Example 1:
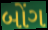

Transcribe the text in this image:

બોંગ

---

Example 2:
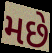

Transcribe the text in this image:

મછે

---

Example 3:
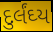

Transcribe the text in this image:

દુર્લંઘ્ય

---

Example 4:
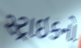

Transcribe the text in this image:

સ્ટ્રાઇકનો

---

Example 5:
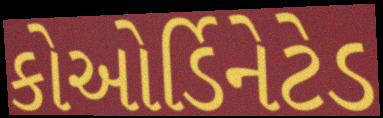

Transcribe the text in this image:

કોઓર્ડિનેટેડ